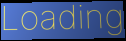
Loading